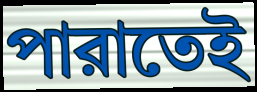
পারাতেই